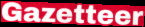
Gazetteer